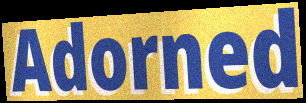
Adorned